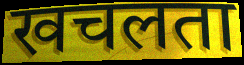
खचलता